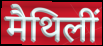
मैथिलीं